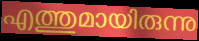
എത്തുമായിരുന്നു